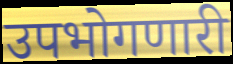
उपभोगणारी